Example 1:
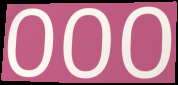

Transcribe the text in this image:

OOO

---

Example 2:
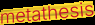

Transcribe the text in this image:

metathesis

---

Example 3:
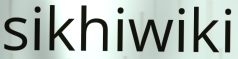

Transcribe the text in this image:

sikhiwiki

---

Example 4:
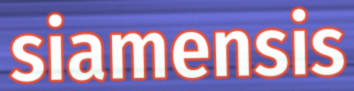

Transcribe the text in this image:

siamensis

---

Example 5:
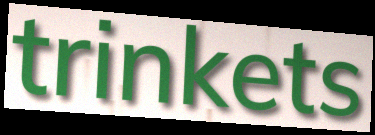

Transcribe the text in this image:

trinkets